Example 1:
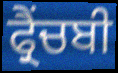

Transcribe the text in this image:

ਫ੍ਰੈਂਚਬੀ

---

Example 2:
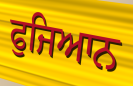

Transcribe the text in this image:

ਫੁਜਿਆਨ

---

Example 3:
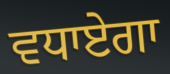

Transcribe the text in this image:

ਵਧਾਏਗਾ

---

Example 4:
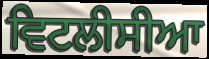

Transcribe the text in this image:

ਵਿਟਲੀਸੀਆ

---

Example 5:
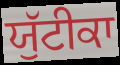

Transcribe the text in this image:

ਯੁੱਟੀਕਾ